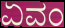
ಏವಂ